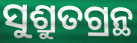
ସୁଶ୍ରୁତଗ୍ରନ୍ଥ